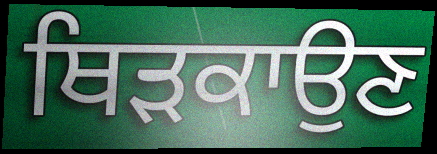
ਥਿੜਕਾਉਣ